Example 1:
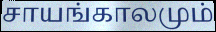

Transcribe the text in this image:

சாயங்காலமும்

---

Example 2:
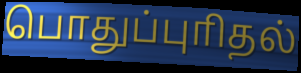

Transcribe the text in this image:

பொதுப்புரிதல்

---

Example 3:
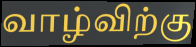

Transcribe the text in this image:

வாழ்விற்கு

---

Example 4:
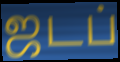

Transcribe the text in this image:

ஜடப்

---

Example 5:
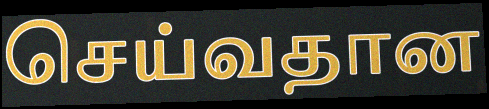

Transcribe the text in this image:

செய்வதான